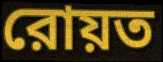
রোয়ত